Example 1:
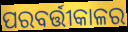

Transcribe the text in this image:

ପରବର୍ତ୍ତୀକାଳର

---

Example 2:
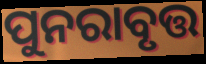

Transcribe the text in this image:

ପୁନରାବୃତ୍ତ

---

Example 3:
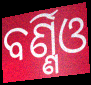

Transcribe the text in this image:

ବର୍ଣ୍ଣିଓ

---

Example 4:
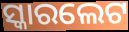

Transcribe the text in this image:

ସ୍କାରଲେଟ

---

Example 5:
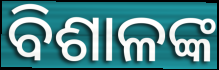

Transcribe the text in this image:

ବିଶାଳଙ୍କ